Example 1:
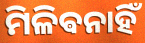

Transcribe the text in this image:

ମିଳିଵନାହିଁ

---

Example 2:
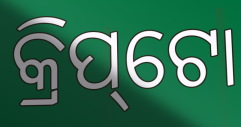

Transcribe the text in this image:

କ୍ରିପ୍‌ଟୋ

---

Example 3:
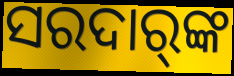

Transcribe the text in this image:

ସରଦାର୍‍ଙ୍କ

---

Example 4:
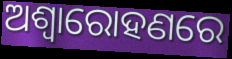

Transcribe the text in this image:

ଅଶ୍ଵାରୋହଣରେ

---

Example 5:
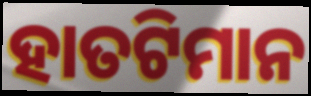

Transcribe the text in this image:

ହାତଟିମାନ